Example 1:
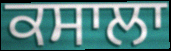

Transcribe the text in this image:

ਕਸਾਲਾ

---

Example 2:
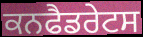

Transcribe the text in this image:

ਕਨਫੈਡਰੇਟਸ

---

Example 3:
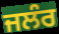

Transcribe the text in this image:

ਜਲੰਰ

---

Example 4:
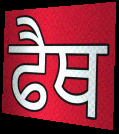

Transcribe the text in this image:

ਫੈਥ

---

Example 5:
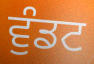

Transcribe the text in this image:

ਵੁੰਡਟ